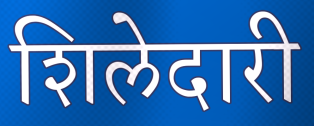
शिलेदारी